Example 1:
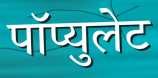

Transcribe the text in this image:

पॉप्युलेट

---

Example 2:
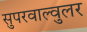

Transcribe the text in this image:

सुपरवाल्वुलर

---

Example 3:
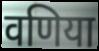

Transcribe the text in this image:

वणिया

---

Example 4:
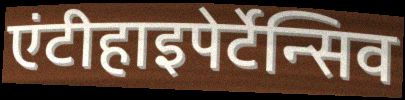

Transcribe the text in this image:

एंटीहाइपेर्टेन्सिव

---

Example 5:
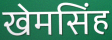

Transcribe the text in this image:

खेमसिंह